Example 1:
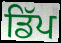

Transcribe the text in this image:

ਡਿੱਪ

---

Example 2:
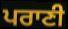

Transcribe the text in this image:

ਪਰਾਣੀ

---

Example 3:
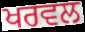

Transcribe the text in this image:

ਖਰਵਲ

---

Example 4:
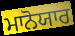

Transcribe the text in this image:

ਮਾਨੋਯਾਰ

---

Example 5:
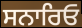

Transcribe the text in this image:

ਸਨਾਰਿਓ